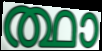
ത്ഥാ